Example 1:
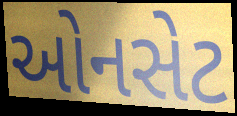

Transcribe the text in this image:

ઓનસેટ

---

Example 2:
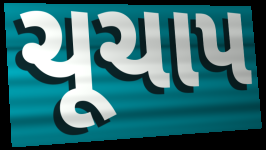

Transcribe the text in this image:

ચૂચાપ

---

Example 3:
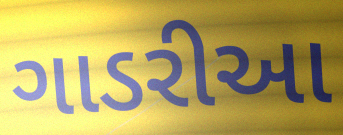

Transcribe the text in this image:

ગાડરીઆ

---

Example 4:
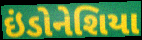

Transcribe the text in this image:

ઇંડોનેશિયા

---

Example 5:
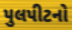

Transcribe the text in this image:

પુલપીટનો